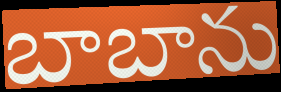
బాబాను